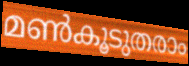
മൺകൂടുതരാം